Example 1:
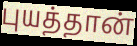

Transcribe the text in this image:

புயத்தான்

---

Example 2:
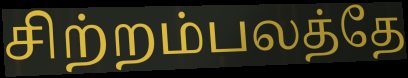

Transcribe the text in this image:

சிற்றம்பலத்தே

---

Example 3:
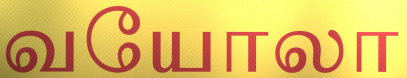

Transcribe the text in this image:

வயோலா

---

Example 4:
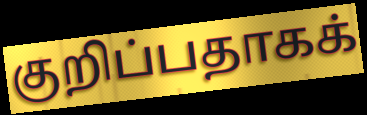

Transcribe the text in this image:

குறிப்பதாகக்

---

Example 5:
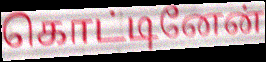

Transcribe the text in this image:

கொட்டினேன்